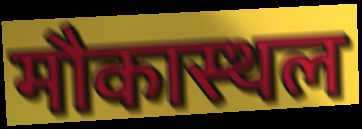
मौकास्थल